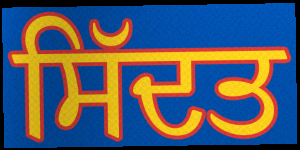
ਸਿੱਦਤ